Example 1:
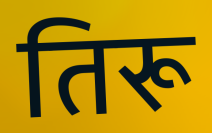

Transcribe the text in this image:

तिरू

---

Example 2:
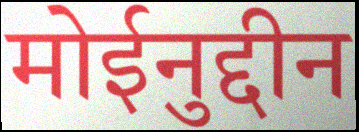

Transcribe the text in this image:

मोईनुद्दीन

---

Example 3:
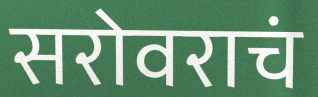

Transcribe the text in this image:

सरोवराचं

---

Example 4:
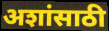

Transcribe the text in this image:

अशांसाठी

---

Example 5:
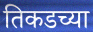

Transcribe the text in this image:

तिकडच्या